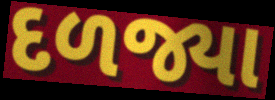
દળજ્યા